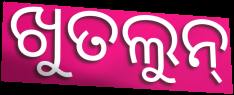
ଖୁତଲୁନ୍